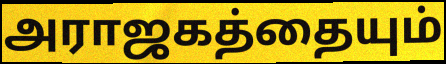
அராஜகத்தையும்